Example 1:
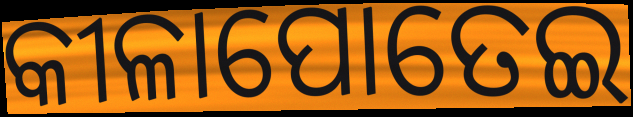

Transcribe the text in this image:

କୀଳାପୋତେଇ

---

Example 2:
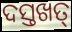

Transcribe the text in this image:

ଦସ୍ତଖତ୍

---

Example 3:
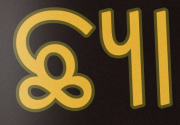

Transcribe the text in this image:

ଛ୍ୟା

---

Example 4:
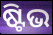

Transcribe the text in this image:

ଷ୍ଟିଭ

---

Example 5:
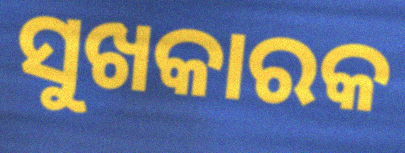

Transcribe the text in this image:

ସୁଖକାରକ